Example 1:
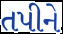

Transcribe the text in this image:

તપીને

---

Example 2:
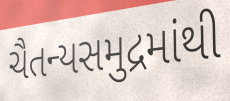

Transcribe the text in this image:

ચૈતન્યસમુદ્રમાંથી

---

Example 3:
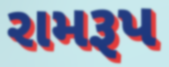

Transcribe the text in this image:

રામરૂપ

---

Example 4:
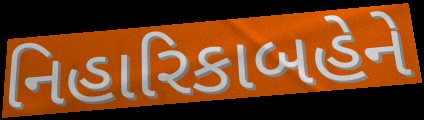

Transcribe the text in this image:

નિહારિકાબહેને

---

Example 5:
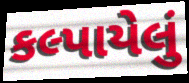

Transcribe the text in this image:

કલ્પાયેલું